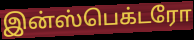
இன்ஸ்பெக்டரோ